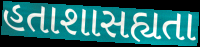
હતાશાસહ્યતા